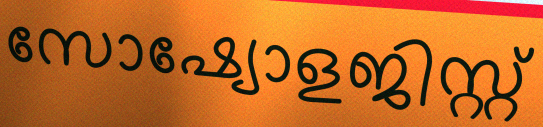
സോഷ്യോളജിസ്റ്റ്